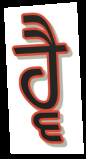
ਹ੍ਵੈ